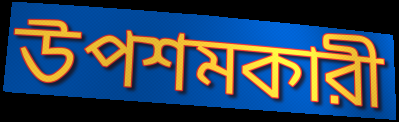
উপশমকারী